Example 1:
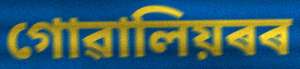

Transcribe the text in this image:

গোৱালিয়ৰৰ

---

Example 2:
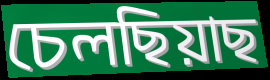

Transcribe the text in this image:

চেলছিয়াছ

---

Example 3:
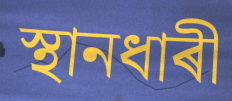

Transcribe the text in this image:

স্থানধাৰী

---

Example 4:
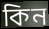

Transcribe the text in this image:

কিন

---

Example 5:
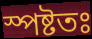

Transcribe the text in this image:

স্পষ্টতঃ